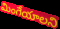
మింగేయాలని